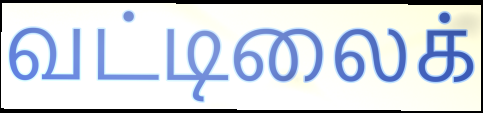
வட்டிலைக்